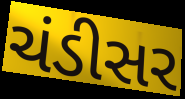
ચંડીસર